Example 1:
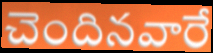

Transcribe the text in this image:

చెందినవారే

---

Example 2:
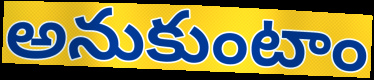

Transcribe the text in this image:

అనుకుంటాం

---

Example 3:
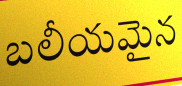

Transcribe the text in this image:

బలీయమైన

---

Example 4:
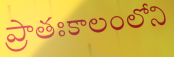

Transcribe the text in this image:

ప్రాతఃకాలంలోని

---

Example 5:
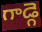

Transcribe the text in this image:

గాడ్గె